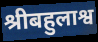
श्रीबहुलाश्व